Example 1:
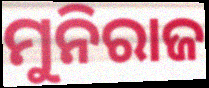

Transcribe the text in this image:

ମୁନିରାଜ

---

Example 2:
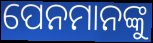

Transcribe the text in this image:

ପେନମାନଙ୍କୁ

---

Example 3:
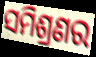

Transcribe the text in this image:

ସମିଶ୍ରଣର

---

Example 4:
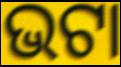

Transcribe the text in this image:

ଭଟା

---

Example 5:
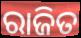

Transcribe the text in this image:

ରାଜିତ